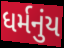
ધર્મનુંય